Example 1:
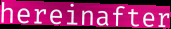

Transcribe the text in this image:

hereinafter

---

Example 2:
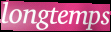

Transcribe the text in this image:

longtemps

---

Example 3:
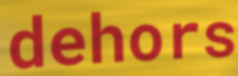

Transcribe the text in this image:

dehors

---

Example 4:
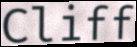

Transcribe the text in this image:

Cliff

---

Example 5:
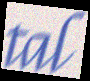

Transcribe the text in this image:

tal